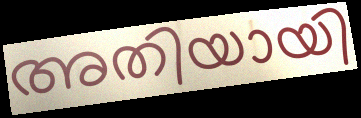
അതിയായി